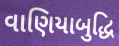
વાણિયાબુદ્ધિ